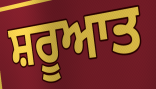
ਸ਼ਰੂਆਤ